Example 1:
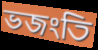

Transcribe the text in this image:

ভজংতি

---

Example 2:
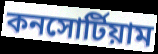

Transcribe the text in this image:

কনসোর্টিয়াম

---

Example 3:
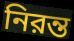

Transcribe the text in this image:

নিরন্ত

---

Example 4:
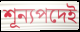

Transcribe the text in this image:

শূন্যপদেই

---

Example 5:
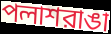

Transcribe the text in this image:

পলাশরাঙা